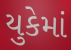
યુકેમાં